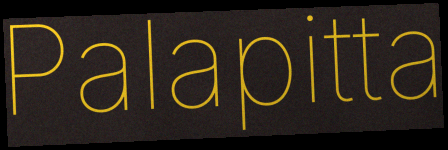
Palapitta